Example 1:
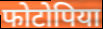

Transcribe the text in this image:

फोटोपिया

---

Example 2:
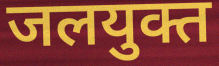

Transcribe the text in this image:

जलयुक्त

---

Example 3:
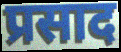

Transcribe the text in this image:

प्रसाद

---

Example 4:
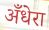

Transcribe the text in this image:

अँधेरा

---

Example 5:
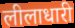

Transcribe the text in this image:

लीलाधारी